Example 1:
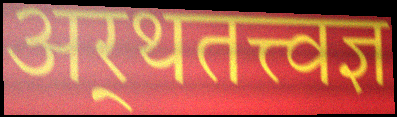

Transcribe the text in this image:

अर्थतत्त्वज्ञ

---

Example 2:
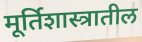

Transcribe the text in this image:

मूर्तिशास्त्रातील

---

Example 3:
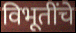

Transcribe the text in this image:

विभूतींचे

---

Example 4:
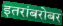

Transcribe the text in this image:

इतरांबरोबर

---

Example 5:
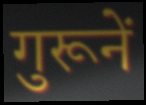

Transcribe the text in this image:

गुरूनें